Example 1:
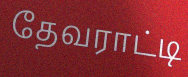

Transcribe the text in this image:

தேவராட்டி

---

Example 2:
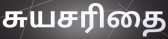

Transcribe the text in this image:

சுயசரிதை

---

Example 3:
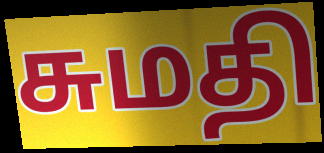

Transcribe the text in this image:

சுமதி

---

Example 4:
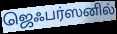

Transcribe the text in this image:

ஜெஃபர்ஸனில்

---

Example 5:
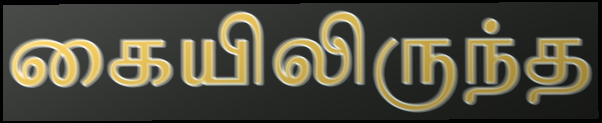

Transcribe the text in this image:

கையிலிருந்த